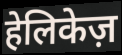
हेलिकेज़